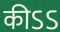
कीऽऽ